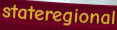
stateregional